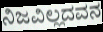
ನಿಜವಿಲ್ಲದವನ